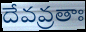
దేవవ్రతాః